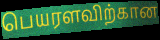
பெயரளவிற்கான